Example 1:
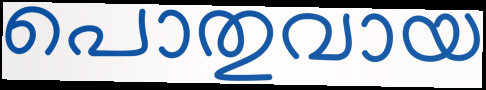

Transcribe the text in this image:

പൊതുവായ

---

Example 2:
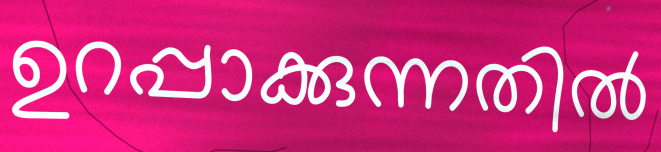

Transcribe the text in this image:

ഉറപ്പാക്കുന്നതിൽ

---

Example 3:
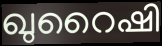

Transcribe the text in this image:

ഖുറൈഷി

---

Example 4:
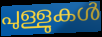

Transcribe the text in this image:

പുള്ളുകൾ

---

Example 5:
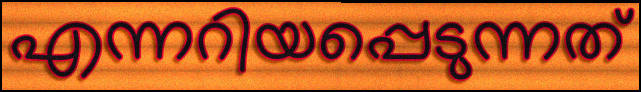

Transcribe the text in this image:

എന്നറിയപ്പെടുന്നത്